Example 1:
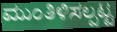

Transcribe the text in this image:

ಮುಂತಿಳಿಸಲ್ಪಟ್ಟ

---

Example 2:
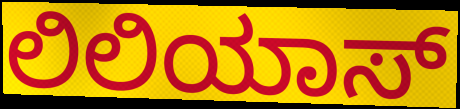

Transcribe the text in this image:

ಲಿಲಿಯಾಸ್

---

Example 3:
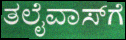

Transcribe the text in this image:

ತಲೈವಾಸ್‌ಗೆ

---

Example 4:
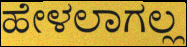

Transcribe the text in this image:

ಹೇಳಲಾಗಲ್ಲ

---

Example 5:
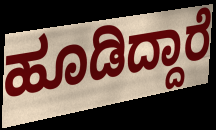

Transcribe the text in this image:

ಹೂಡಿದ್ದಾರೆ